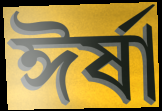
ঈৰ্ষা